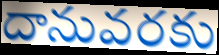
దానువరకు